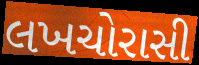
લખચોરાસી